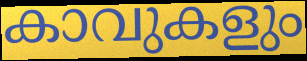
കാവുകളും